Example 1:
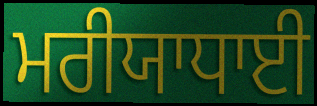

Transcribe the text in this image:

ਮਰੀਯਾਧਾਈ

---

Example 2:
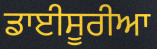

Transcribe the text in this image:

ਡਾਈਸੂਰੀਆ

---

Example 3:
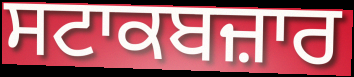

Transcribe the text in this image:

ਸਟਾਕਬਜ਼ਾਰ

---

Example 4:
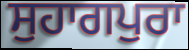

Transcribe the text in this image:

ਸੁਹਾਗਪੁਰਾ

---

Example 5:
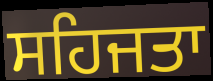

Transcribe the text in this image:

ਸਹਿਜਤਾ